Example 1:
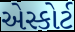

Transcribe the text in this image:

એસ્કોર્ટ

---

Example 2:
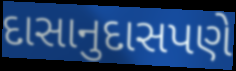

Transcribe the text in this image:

દાસાનુદાસપણે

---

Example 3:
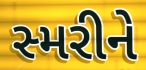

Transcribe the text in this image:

સ્મરીને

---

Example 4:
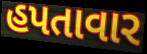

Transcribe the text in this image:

હપતાવાર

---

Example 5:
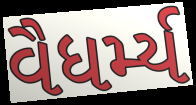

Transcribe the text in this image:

વૈધર્મ્ય